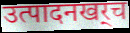
उत्पादनखर्च